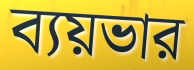
ব্যয়ভার